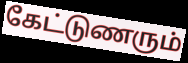
கேட்டுணரும்